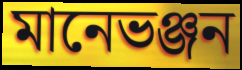
মানেভঞ্জন